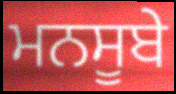
ਮਨਸੂਬੇ